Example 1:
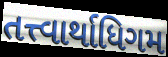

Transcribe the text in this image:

તત્ત્વાર્થાધિગમ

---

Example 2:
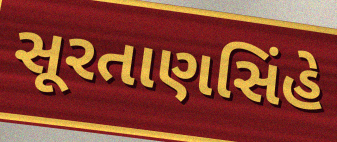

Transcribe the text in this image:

સૂરતાણસિંહે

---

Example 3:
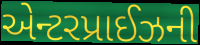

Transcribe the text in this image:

એન્ટરપ્રાઈઝની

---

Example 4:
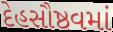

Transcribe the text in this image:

દેહસૌષ્ઠવમાં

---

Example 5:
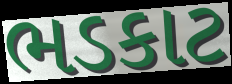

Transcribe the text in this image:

ભડકાટ